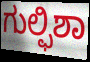
ಗುಲ್ಫಿಶಾ